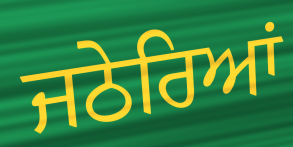
ਜਠੇਰਿਆਂ